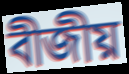
বীজীয়